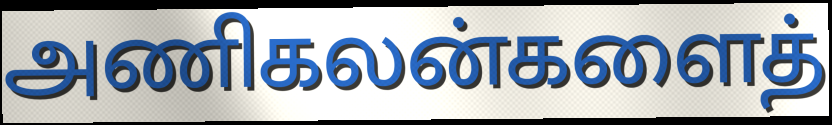
அணிகலன்களைத்